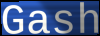
Gash